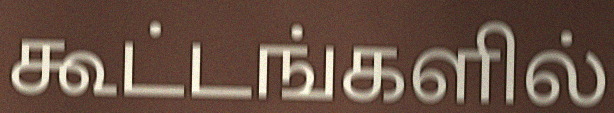
கூட்டங்களில்